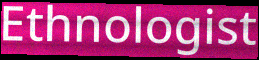
Ethnologist